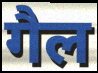
गैल